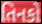
તિનકો